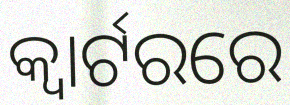
କ୍ବାର୍ଟରରେ